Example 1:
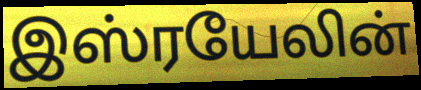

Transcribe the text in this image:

இஸ்ரயேலின்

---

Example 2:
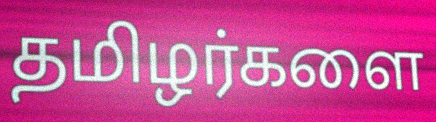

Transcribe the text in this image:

தமிழர்களை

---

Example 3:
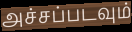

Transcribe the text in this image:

அச்சப்படவும்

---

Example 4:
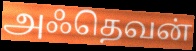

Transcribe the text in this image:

அஃதெவன்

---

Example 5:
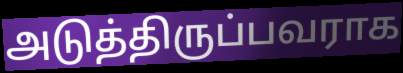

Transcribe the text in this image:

அடுத்திருப்பவராக